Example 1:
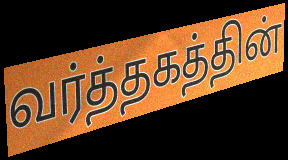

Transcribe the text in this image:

வர்த்தகத்தின்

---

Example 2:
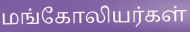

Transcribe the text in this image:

மங்கோலியர்கள்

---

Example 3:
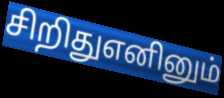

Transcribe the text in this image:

சிறிதுஎனினும்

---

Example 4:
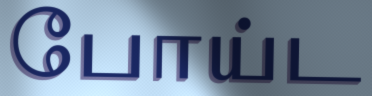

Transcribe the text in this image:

போய்ட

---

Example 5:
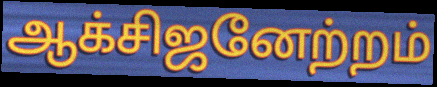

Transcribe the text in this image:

ஆக்சிஜனேற்றம்